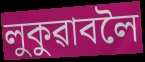
লুকুৱাবলৈ